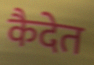
कैदेत